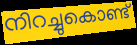
നിറച്ചുകൊണ്ട്